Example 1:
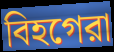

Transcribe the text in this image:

বিহগেরা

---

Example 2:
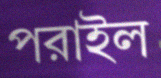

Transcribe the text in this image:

পরাইল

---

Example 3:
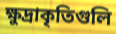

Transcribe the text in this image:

ক্ষুদ্রাকৃতিগুলি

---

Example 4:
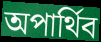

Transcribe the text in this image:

অপার্থিব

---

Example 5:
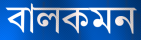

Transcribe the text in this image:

বালকমন